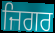
ਜਿਗਰ